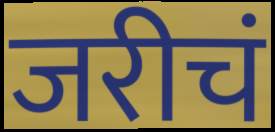
जरीचं